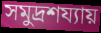
সমুদ্রশয্যায়